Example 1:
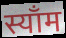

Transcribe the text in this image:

स्याँम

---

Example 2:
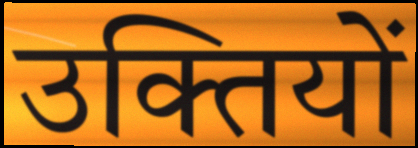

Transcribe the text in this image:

उक्तियों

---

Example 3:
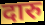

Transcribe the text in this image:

दारु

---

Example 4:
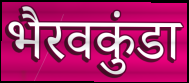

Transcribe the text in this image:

भैरवकुंडा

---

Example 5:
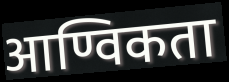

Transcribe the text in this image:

आण्विकता